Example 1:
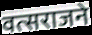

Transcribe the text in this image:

वत्सराजने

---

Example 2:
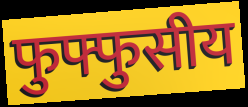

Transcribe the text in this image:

फुफ्फुसीय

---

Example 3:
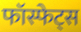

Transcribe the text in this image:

फॉस्फेट्स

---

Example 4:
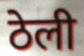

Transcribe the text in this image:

ठेली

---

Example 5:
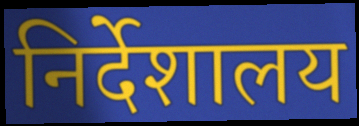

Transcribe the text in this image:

निर्देशालय